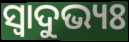
ସ୍ବାଦୁଭ୍ୟଃ